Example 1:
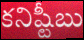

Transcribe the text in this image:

కనిష్టీబు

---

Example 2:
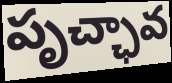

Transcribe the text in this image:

పృచ్ఛావ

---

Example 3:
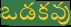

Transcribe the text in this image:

ఒడకవు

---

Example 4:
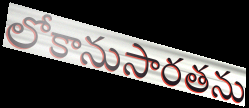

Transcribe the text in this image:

లోకానుసారతను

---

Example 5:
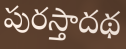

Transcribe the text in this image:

పురస్తాదథ